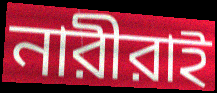
নারীরাই